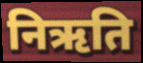
निऋति